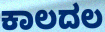
ಕಾಲದಲ